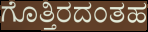
ಗೊತ್ತಿರದಂತಹ